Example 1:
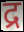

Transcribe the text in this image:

द्र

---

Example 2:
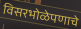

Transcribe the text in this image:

विसरभोळेपणाचे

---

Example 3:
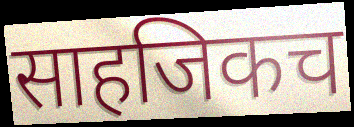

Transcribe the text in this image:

साहजिकच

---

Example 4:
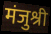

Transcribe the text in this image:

मंजुश्री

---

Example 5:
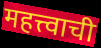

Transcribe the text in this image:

महत्त्वाची